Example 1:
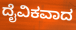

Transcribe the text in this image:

ದೈವಿಕವಾದ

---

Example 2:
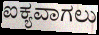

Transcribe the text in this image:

ಐಕ್ಯವಾಗಲು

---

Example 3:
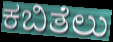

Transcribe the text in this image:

ಕಬಿತೆಲು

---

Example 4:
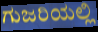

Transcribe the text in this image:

ಗುಜರಿಯಲ್ಲಿ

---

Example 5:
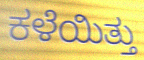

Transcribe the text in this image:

ಕಳೆಯಿತ್ತು